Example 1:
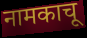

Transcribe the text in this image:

नामकाचू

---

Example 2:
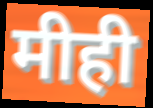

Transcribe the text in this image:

मीही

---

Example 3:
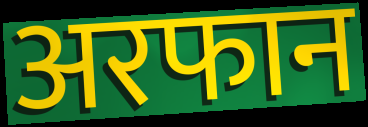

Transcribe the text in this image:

अरफान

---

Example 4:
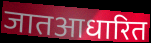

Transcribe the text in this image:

जातआधारित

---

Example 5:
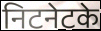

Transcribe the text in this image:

निटनेटके